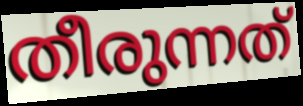
തീരുന്നത്